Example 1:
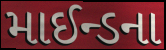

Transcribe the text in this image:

માઈન્ડના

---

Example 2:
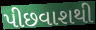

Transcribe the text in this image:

પીછવાશથી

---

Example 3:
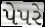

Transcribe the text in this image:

પેપરે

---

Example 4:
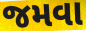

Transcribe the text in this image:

જમવા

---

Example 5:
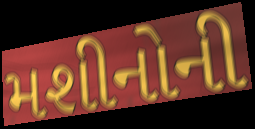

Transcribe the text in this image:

મશીનોની